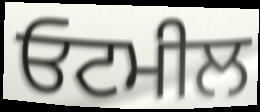
ਓਟਮੀਲ